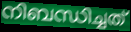
നിബന്ധിച്ചത്